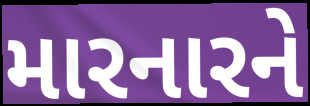
મારનારને